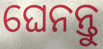
ଘେନନ୍ତୁ